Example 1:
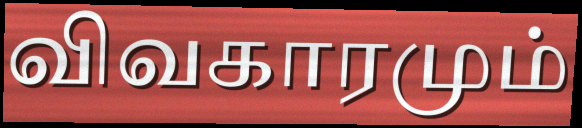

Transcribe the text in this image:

விவகாரமும்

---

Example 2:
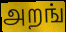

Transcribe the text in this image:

அறங்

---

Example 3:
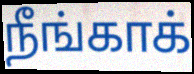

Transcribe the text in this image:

நீங்காக்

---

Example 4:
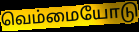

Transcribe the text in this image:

வெம்மையோடு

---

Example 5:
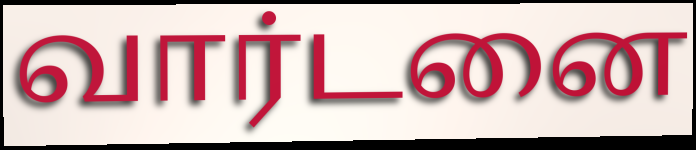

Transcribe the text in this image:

வார்டனை